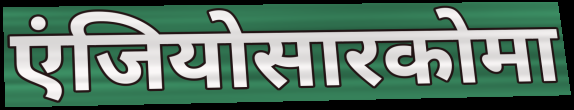
एंजियोसारकोमा